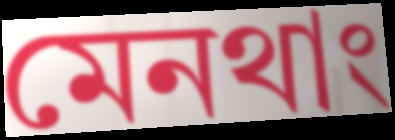
মেনথাং